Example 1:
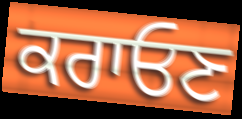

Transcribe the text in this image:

ਕਰਾਓਣ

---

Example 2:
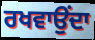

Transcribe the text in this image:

ਰਖਵਾਉਂਦਾ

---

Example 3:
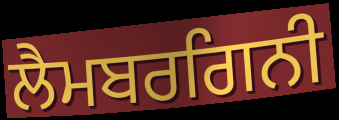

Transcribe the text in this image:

ਲੈਮਬਰਗਿਨੀ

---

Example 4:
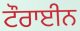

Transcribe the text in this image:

ਟੌਰਾਈਨ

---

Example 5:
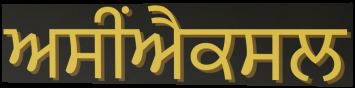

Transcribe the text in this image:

ਅਸੀਂਐਕਸਲ